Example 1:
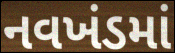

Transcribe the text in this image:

નવખંડમાં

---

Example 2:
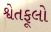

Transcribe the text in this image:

શ્વેતફૂલો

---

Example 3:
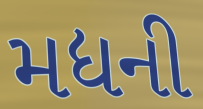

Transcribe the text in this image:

મદ્યની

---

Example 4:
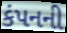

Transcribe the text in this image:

કંપનની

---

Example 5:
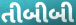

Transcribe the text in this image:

તીબીબી